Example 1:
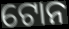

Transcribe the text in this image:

ଟୋନ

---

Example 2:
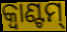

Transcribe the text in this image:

କ୍ଵାଣ୍ଟମ୍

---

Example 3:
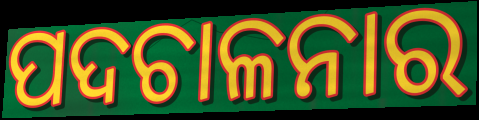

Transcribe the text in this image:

ପଦଚାଳନାର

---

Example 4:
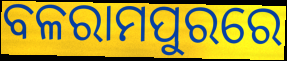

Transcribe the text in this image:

ବଳରାମପୁରରେ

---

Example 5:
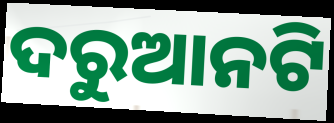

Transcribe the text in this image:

ଦରୁଆନଟି